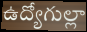
ఉద్యోగుల్లా